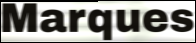
Marques